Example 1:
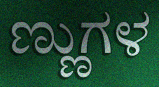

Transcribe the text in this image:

ಣ್ಣುಗಳ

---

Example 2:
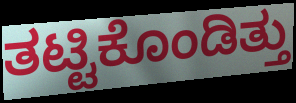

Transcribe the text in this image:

ತಟ್ಟಿಕೊಂಡಿತ್ತು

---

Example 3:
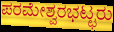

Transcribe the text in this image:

ಪರಮೇಶ್ವರಭಟ್ಟರು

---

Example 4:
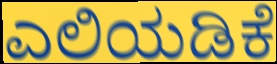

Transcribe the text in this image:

ಎಲಿಯಡಿಕೆ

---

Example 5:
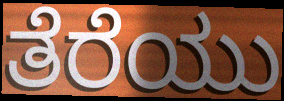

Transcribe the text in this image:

ತೆರೆಯು